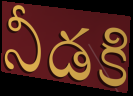
నీడకి